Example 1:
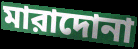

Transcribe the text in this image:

মারাদোনা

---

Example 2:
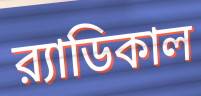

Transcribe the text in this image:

র‍্যাডিকাল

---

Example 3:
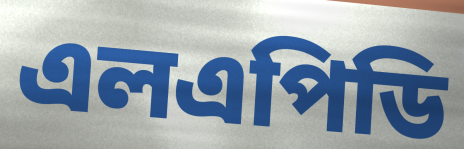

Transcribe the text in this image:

এলএপিডি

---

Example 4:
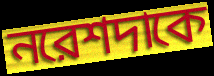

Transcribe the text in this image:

নরেশদাকে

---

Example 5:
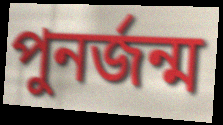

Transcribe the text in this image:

পুনর্জন্ম